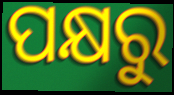
ପକ୍ଷରୁ